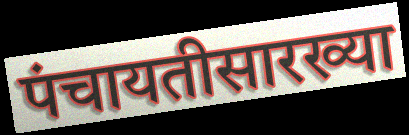
पंचायतीसारख्या